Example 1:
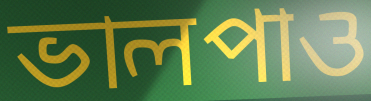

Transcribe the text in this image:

ভালপাও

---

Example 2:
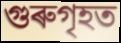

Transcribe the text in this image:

গুৰুগৃহত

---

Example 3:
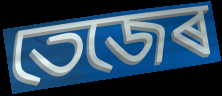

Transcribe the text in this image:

তেজেৰ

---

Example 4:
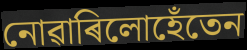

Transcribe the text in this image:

নোৱাৰিলোহেঁতেন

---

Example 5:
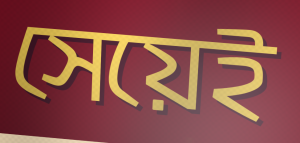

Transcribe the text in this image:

সেয়েই